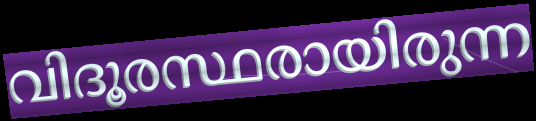
വിദൂരസ്ഥരായിരുന്ന